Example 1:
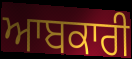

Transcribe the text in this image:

ਆਬਕਾਰੀ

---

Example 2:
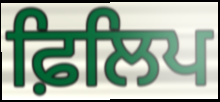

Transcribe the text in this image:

ਫ਼ਿਲਿਪ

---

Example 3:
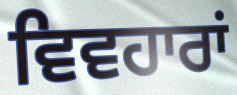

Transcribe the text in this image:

ਵਿਵਹਾਰਾਂ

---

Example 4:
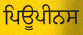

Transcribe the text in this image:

ਪਿਊਪੀਨਸ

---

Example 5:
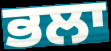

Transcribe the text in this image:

ਭਲਾ